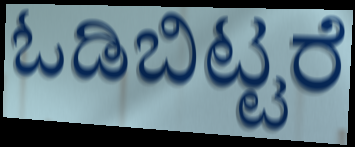
ಓಡಿಬಿಟ್ಟರೆ